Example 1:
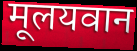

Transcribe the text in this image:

मूलयवान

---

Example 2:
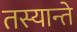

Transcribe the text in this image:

तस्यान्ते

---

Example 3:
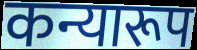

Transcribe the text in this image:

कन्यारूप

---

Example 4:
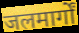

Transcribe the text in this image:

जलमार्गों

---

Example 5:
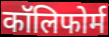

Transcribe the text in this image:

कॉलिफोर्म